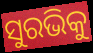
ସୁରଭିକୁ